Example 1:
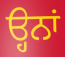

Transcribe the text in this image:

ੳ੍ਹਨਾਂ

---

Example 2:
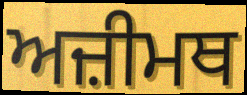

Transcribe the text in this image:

ਅਜ਼ੀਮਥ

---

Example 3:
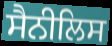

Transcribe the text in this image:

ਸੈਨੀਲਿਸ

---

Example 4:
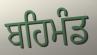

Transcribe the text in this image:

ਬਹਿਮੰਡ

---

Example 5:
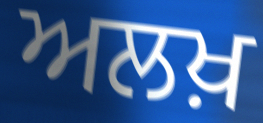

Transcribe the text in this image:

ਅਲਖ਼